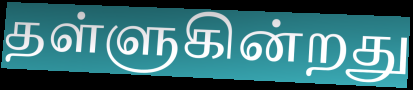
தள்ளுகின்றது